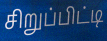
சிறுப்பிட்டி